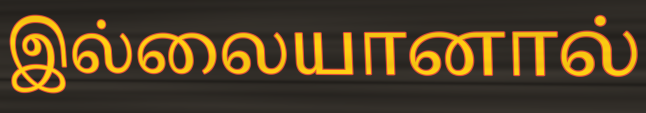
இல்லையானால்